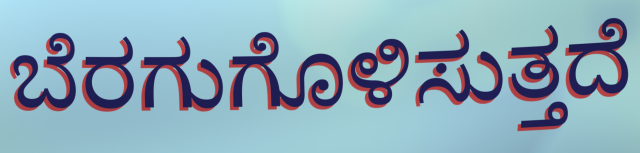
ಬೆರಗುಗೊಳಿಸುತ್ತದೆ